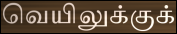
வெயிலுக்குக்